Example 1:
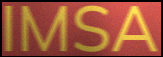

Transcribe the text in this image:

IMSA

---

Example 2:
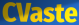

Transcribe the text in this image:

CVaste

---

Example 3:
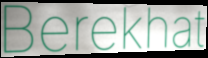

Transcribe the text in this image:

Berekhat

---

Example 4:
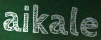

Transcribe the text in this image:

aikale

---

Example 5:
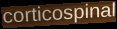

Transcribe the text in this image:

corticospinal